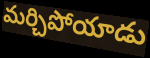
మర్చిపోయాడు